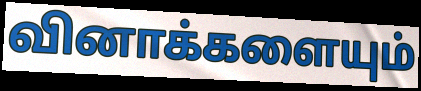
வினாக்களையும்